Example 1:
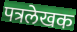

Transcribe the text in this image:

पत्रलेखक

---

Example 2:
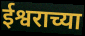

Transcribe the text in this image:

ईश्वराच्या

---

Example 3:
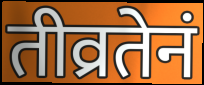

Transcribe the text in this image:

तीव्रतेनं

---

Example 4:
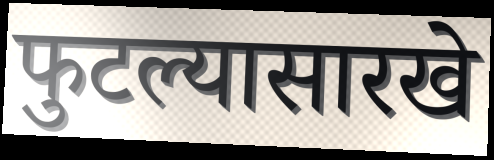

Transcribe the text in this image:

फुटल्यासारखे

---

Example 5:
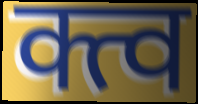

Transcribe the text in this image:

क्त्व